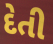
દેતી